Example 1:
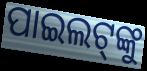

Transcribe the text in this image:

ପାଇଲଟ୍‌ଙ୍କୁ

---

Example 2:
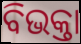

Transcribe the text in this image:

ବିଭକ୍ତା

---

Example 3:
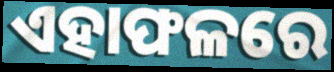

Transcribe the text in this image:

ଏହାଫଳରେ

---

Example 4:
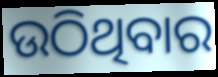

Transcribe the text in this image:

ଉଠିଥିବାର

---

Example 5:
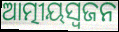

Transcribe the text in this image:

ଆତ୍ମୀୟସ୍ୱଜନ